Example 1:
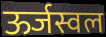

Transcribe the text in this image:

ऊर्जस्वल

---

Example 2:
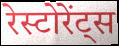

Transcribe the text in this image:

रेस्‍टोरेंट्स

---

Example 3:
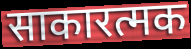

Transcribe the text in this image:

साकारत्मक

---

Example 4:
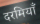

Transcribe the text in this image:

दरमियाँ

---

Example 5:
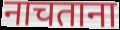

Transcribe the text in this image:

नाचताना